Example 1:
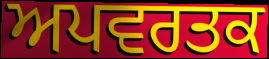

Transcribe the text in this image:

ਅਪਵਰਤਕ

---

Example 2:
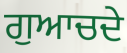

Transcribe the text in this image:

ਗੁਆਚਦੇ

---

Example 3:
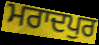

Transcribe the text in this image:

ਮਰਾਦਪੁਰ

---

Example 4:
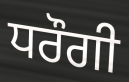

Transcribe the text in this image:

ਧਰੌਗੀ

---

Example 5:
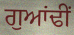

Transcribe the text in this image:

ਗੁਆਂਢੀਂ